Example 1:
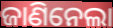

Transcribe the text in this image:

ଜାଣିନେଲା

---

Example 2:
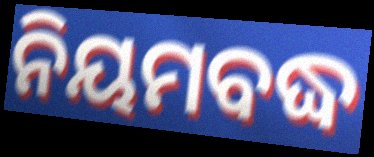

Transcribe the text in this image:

ନିୟମବଦ୍ଧ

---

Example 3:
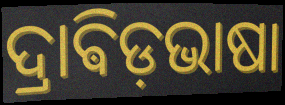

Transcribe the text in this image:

ଦ୍ରାଵିଡ଼ଭାଷା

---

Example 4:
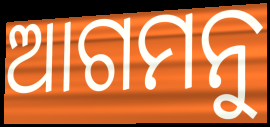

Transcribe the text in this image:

ଆଗମନୁ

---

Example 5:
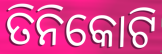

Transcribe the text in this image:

ତିନିକୋଟି